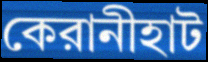
কেরানীহাট